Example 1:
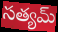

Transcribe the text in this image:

సత్యమ్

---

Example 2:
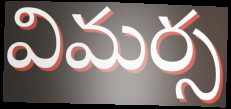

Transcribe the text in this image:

విమర్స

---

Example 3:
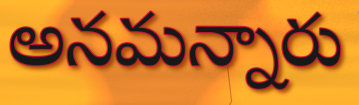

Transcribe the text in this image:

అనమన్నారు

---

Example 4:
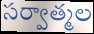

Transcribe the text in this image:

సర్వాత్మల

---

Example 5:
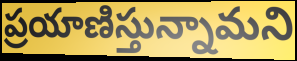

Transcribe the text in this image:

ప్రయాణిస్తున్నామని